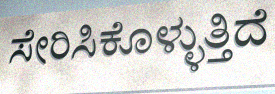
ಸೇರಿಸಿಕೊಳ್ಳುತ್ತಿದೆ